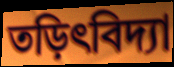
তড়িৎবিদ্যা